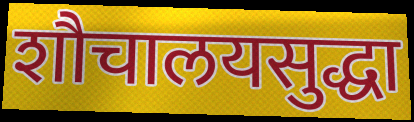
शौचालयसुद्धा